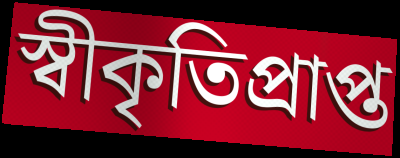
স্বীকৃতিপ্ৰাপ্ত